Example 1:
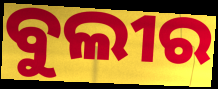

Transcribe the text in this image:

ବୁଲୀର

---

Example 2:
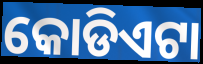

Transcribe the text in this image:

କୋଡିଏଟା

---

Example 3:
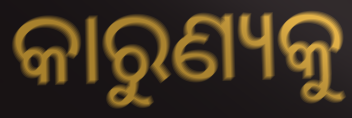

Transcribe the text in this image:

କାରୁଣ୍ୟକୁ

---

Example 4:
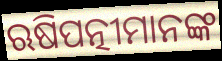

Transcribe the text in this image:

ଋଷିପତ୍ନୀମାନଙ୍କ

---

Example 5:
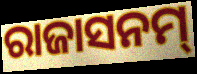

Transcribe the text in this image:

ରାଜାସନମ୍